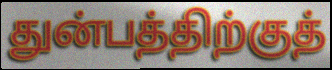
துன்பத்திற்குத்